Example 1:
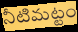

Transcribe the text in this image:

నీటిమట్టం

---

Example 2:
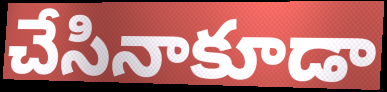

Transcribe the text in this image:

చేసినాకూడా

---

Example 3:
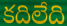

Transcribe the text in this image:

కదిలేది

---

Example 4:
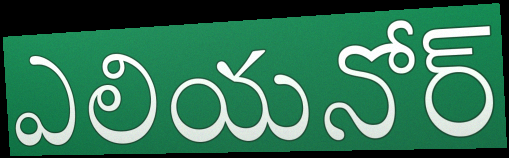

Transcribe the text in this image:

ఎలియనోర్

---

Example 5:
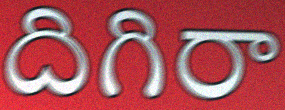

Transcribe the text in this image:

దిగిరా